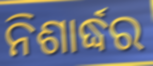
ନିଶାର୍ଦ୍ଧର